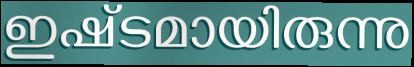
ഇഷ്‌ടമായിരുന്നു